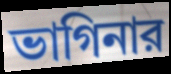
ভাগিনার